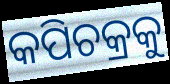
କପିଚକ୍ରକୁ